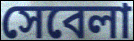
সেবেলা